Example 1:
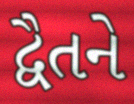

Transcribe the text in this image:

દ્વૈતને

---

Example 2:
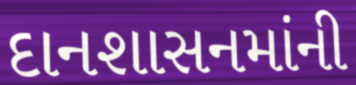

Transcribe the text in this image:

દાનશાસનમાંની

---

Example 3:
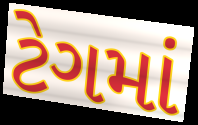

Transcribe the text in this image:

ટેગમાં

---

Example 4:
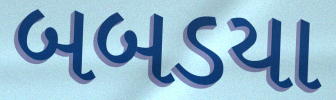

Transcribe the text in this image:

બબડયા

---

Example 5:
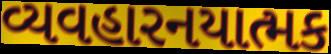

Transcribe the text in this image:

વ્યવહારનયાત્મક